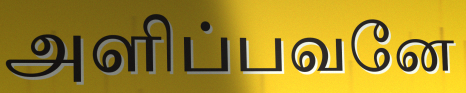
அளிப்பவனே